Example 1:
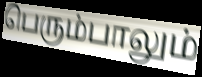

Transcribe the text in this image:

பெரும்பாலும்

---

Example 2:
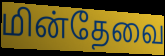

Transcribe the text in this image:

மின்தேவை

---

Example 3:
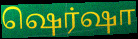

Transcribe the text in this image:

ஷெர்ஷா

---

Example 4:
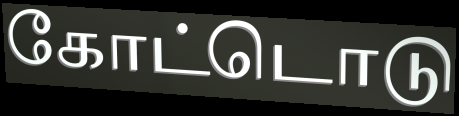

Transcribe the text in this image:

கோட்டொடு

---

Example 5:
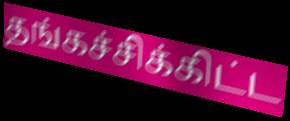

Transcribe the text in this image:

தங்கச்சிக்கிட்ட